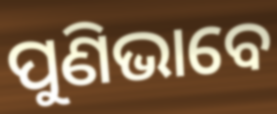
ପୁଣିଭାବେ